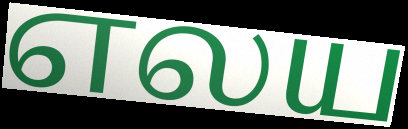
எலய